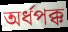
অর্ধপক্ক